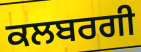
ਕਲਬਰਗੀ